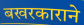
बखरकाराने